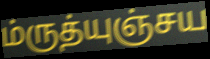
ம்ருத்யுஞ்சய